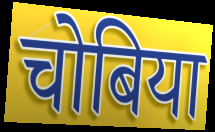
चोबिया